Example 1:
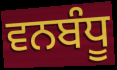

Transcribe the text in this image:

ਵਨਬੰਧੂ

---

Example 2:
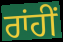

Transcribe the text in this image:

ਰਾਂਹੀਂ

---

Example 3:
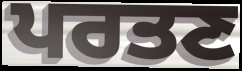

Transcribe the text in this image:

ਪਰਤਣ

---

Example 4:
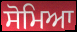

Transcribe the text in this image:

ਸੋਮਿਆ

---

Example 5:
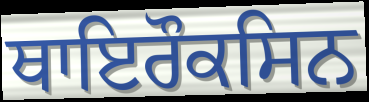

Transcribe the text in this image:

ਥਾਇਰੌਕਸਿਨ